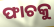
ଫାଚକୁ